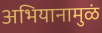
अभियानामुळं